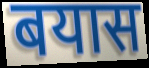
बयास